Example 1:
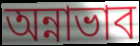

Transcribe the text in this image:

অন্নাভাব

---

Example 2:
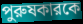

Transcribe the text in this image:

পুরুষকারকে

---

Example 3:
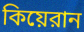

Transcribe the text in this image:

কিয়েরান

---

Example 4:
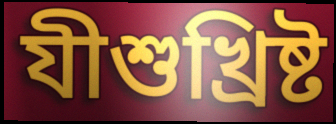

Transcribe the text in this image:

যীশুখ্রিষ্ট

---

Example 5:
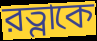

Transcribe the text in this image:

রত্নাকে